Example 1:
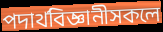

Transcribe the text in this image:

পদাৰ্থবিজ্ঞানীসকলে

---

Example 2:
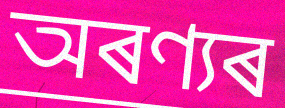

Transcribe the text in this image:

অৰণ্যৰ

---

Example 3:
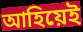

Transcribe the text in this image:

আহিয়েই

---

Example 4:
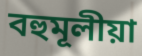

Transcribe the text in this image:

বহুমূলীয়া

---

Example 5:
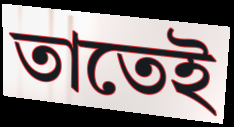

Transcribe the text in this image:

তাতেই